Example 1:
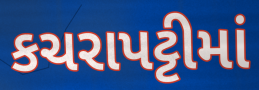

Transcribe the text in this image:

કચરાપટ્ટીમાં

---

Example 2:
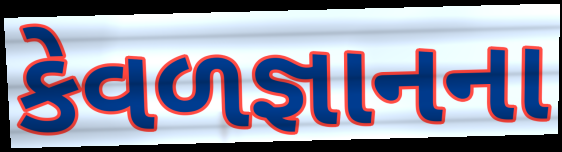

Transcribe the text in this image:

કેવળજ્ઞાનના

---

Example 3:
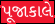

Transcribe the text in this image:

પૂજાકાલે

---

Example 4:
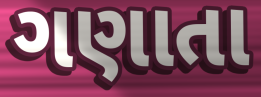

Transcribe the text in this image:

ગણાતા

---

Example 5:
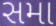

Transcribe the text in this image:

સમા